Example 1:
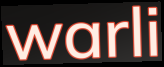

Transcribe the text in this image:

warli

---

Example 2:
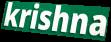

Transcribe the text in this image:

krishna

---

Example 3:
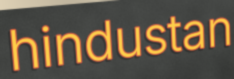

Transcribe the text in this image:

hindustan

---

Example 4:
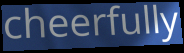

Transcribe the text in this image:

cheerfully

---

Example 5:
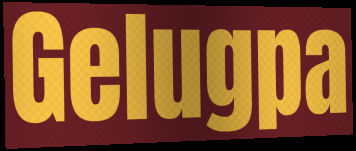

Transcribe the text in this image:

Gelugpa